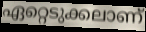
ഏറ്റെടുക്കലാണ്